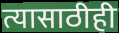
त्यासाठीही